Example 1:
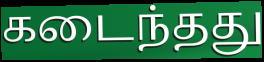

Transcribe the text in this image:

கடைந்தது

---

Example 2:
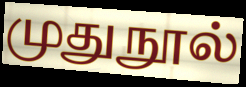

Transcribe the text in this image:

முதுநூல்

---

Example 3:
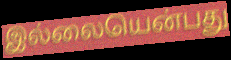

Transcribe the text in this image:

இல்லையென்பது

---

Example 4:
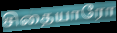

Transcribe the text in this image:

சிதையாரோ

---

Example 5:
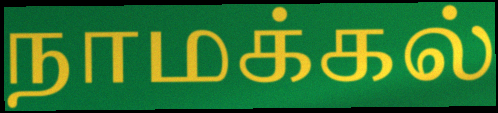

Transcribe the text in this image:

நாமக்கல்